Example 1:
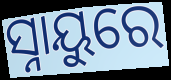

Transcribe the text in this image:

ସ୍ନାୟୁରେ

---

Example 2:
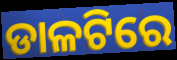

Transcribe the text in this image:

ଡାଳଟିରେ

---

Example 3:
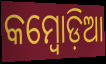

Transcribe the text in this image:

କମ୍ୱୋଡ଼ିଆ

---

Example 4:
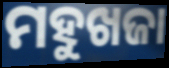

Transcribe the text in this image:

ମହୁଖଜା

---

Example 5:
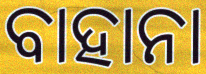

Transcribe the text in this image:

ବାହାନା